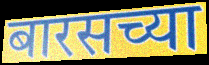
बारसच्या